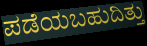
ಪಡೆಯಬಹುದಿತ್ತು